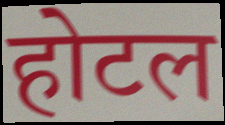
होटल